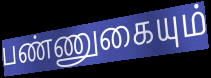
பண்ணுகையும்